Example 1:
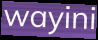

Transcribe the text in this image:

wayini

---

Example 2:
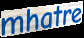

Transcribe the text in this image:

mhatre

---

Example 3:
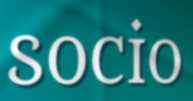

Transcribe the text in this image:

socio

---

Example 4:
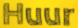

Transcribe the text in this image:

Huur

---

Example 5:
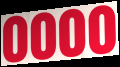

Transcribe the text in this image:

oooo